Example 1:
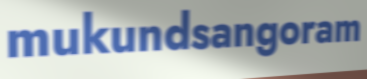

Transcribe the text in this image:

mukundsangoram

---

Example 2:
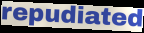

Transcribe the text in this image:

repudiated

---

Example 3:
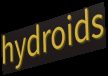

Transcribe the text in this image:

hydroids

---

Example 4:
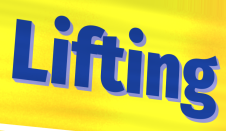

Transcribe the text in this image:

Lifting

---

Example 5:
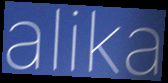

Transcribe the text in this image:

alika